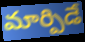
మార్పిడే